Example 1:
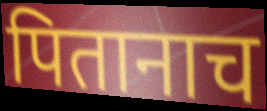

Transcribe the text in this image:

पितानाच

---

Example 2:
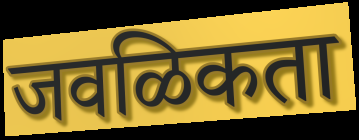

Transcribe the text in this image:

जवळिकता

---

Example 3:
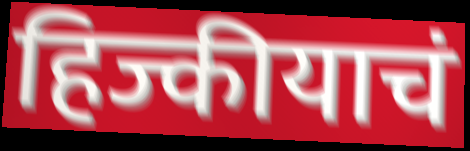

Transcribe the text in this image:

हिज्कीयाचं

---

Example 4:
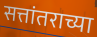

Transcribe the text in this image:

सत्तांतराच्या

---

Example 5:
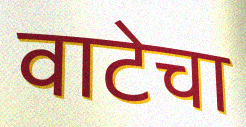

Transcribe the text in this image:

वाटेचा